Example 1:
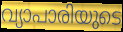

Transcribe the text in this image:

വ്യാപാരിയുടെ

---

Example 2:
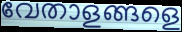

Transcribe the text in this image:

വേതാളങ്ങളെ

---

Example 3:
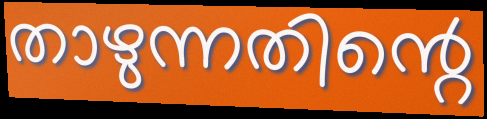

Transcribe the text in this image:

താഴുന്നതിന്റെ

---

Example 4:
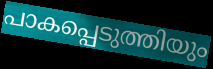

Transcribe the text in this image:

പാകപ്പെടുത്തിയും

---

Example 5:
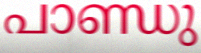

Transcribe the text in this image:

പാണ്ഡു